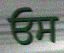
ਓਸ